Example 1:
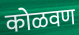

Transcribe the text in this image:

कोळवण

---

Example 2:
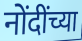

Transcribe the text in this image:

नोंदींच्या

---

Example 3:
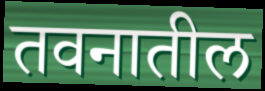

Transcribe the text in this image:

तवनातील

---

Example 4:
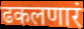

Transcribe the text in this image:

ढकलणारं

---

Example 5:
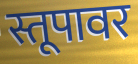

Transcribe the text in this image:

स्तूपावर